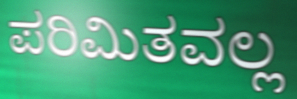
ಪರಿಮಿತವಲ್ಲ